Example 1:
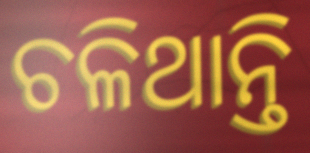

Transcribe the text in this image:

ଚଳିଥାନ୍ତି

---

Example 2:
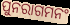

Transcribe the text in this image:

ପୁନରାଗମନଂ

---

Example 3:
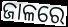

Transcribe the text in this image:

ଜାଳରେ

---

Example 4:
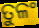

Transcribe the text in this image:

ତୁଳଂ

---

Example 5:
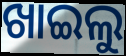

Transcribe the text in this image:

ଖାଇଲୁ